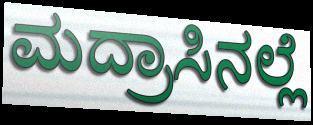
ಮದ್ರಾಸಿನಲ್ಲೆ